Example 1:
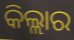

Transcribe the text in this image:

କିଲ୍ଲାର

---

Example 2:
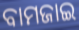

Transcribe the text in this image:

ବାମଜାଇ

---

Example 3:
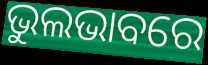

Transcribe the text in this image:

ଭୁଲଭାବରେ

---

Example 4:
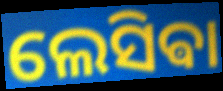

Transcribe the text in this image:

ଲେସିଵା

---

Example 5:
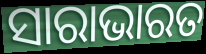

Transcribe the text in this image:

ସାରାଭାରତ